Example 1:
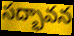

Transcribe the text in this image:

సద్భావన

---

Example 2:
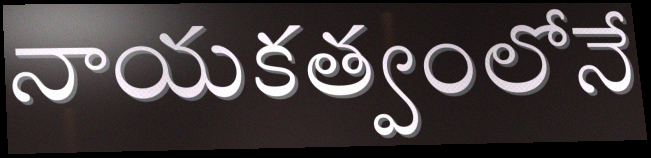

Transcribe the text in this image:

నాయకత్వంలోనే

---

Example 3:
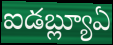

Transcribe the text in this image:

ఐడబ్ల్యూఏ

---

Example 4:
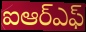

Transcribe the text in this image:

ఐఆర్ఎఫ్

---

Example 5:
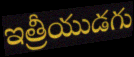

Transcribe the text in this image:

ఇత్రీయుడగు